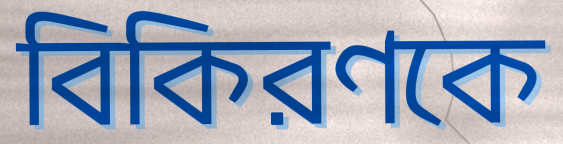
বিকিরণকে